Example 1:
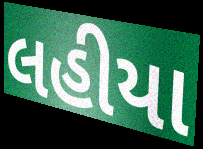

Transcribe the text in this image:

લહીયા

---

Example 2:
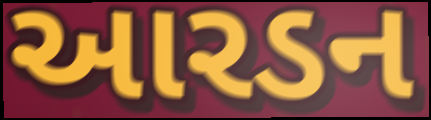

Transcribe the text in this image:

આરડન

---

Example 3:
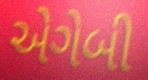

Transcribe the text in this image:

એગેબી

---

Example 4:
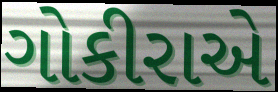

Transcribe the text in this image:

ગોકીરાએ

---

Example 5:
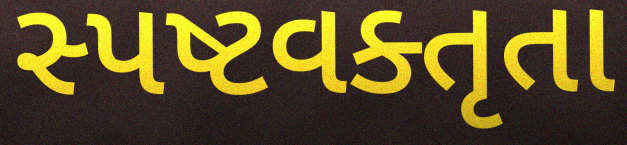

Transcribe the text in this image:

સ્પષ્ટવક્તૃતા